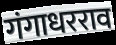
गंगाधरराव